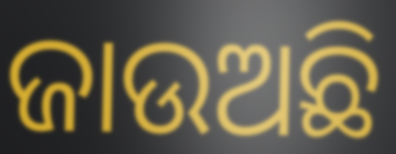
ଜାଉଅଛି